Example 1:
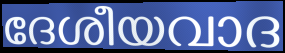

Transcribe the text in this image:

ദേശീയവാദ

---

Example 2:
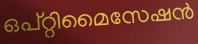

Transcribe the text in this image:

ഒപ്റ്റിമൈസേഷൻ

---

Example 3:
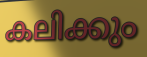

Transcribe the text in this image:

കലിക്കും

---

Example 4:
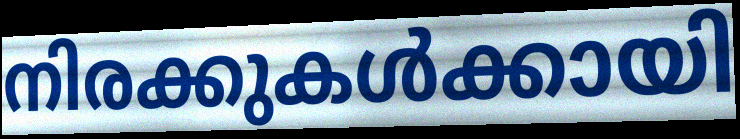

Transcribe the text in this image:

നിരക്കുകൾക്കായി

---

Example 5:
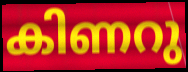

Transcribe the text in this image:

കിണറു